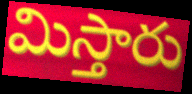
మిస్తారు